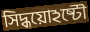
সিদ্ধয়োঽষ্টৌ